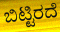
ಬಿಟ್ಟಿರದೆ